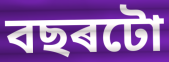
বছৰটো